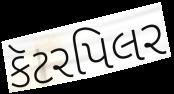
કૅટરપિલર